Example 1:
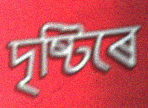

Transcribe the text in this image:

দৃষ্টিৰে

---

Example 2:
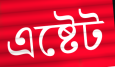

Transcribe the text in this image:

এষ্টেট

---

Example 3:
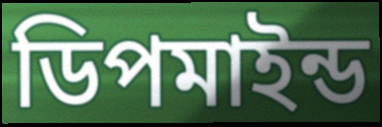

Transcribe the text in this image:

ডিপমাইন্ড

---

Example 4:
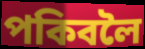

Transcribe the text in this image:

পকিবলৈ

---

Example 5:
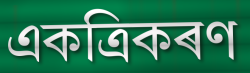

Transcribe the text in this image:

একত্ৰিকৰণ